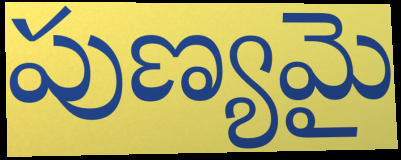
పుణ్యమై